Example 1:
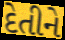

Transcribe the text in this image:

દેતીને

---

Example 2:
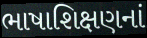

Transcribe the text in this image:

ભાષાશિક્ષણનાં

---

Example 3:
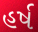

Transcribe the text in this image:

હર્ષ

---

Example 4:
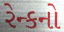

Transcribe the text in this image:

રેન્કનો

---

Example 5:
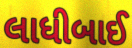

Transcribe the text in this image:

લાધીબાઈ